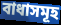
বাধাসমূহ